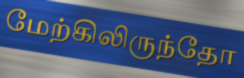
மேற்கிலிருந்தோ